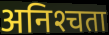
अनिश्चता